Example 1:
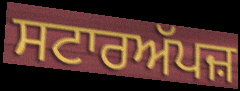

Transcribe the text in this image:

ਸਟਾਰਅੱਪਜ਼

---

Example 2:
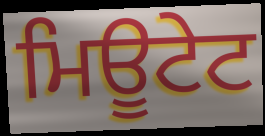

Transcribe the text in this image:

ਮਿਊਟੇਟ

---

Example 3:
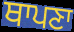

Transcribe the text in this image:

ਥਾਪਣਾ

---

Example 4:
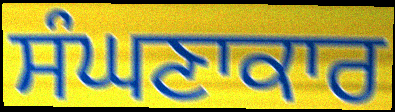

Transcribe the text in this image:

ਸੰਘਣਾਕਾਰ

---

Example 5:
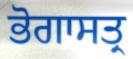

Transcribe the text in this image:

ਭੋਗਾਸਤ੍ਰ